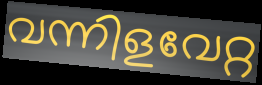
വന്നിളവേറ്റ